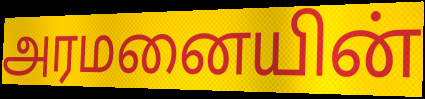
அரமனையின்